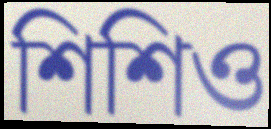
শিশিও